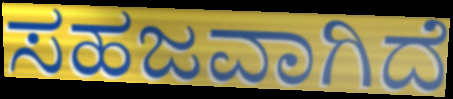
ಸಹಜವಾಗಿದೆ